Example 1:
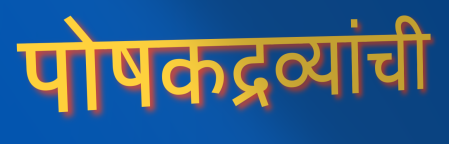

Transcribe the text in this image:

पोषकद्रव्यांची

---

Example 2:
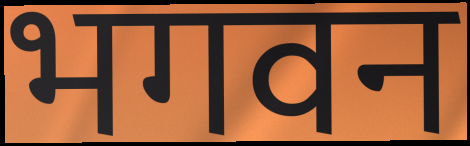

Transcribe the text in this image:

भगवन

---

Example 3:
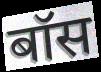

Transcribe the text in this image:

बॉस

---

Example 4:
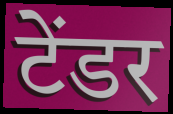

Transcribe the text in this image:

टेंडर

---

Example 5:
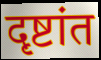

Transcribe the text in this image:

दृष्टांत